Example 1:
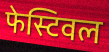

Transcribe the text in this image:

फेस्टिवल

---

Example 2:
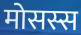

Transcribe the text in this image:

मोसस्स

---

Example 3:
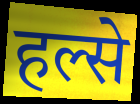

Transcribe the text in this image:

हल्से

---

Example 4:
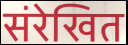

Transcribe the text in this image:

संरेखित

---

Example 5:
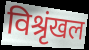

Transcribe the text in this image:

विश्रृंखल